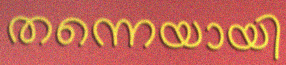
തന്നെയായി